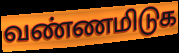
வண்ணமிடுக